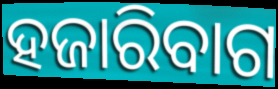
ହଜାରିବାଗ